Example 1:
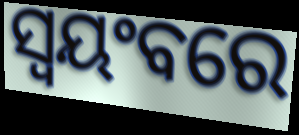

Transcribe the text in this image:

ସ୍ଵୟଂବରେ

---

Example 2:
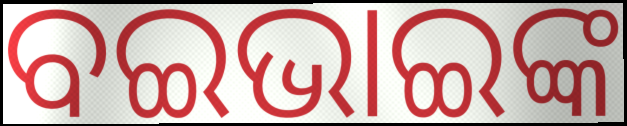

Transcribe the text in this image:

ବଇଭାଇଙ୍କ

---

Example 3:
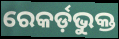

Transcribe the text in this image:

ରେକର୍ଡ଼ଭୁକ୍ତ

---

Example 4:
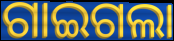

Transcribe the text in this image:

ଗାଇଗଲା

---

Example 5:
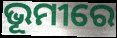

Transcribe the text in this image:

ଭୂମୀରେ